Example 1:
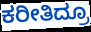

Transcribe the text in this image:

ಕರೀತಿದ್ರೂ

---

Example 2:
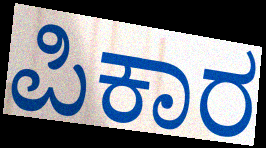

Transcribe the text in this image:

ಪಿಕಾರ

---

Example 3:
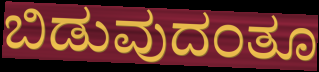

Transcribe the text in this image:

ಬಿಡುವುದಂತೂ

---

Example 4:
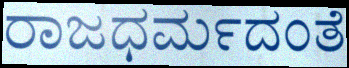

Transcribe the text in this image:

ರಾಜಧರ್ಮದಂತೆ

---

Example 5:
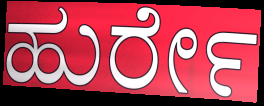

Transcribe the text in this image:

ಹುರ್ರೇ